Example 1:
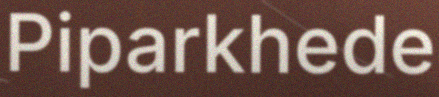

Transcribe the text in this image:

Piparkhede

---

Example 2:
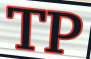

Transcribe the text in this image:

TP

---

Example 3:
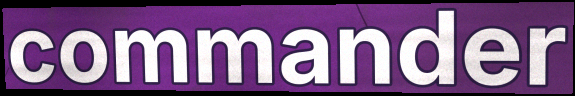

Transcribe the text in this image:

commander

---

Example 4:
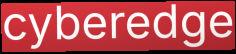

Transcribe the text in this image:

cyberedge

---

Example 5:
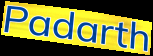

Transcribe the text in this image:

Padarth